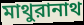
মাথুরানাথ